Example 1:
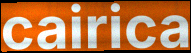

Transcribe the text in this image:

cairica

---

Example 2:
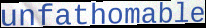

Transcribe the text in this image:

unfathomable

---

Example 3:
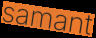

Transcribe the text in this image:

samant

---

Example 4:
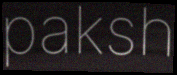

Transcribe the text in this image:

paksh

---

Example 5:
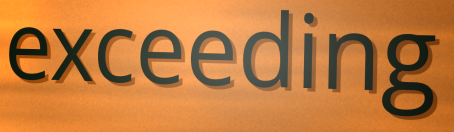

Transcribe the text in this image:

exceeding